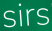
sirs